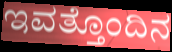
ಇವತ್ತೊಂದಿನ